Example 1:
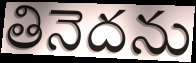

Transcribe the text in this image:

తినెదను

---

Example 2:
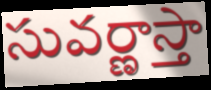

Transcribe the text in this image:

సువర్ణాస్తా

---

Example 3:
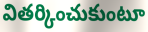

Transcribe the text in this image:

వితర్కించుకుంటూ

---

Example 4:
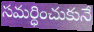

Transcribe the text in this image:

సమర్ధించుకునే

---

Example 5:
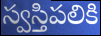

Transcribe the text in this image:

స్వస్తిపలికి